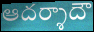
ఆదర్శాదౌ